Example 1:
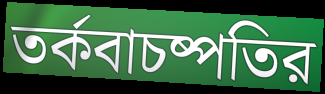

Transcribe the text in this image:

তর্কবাচষ্পতির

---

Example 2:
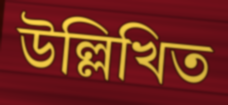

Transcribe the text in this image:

উল্লিখিত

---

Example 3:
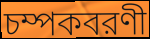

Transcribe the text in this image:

চম্পকবরণী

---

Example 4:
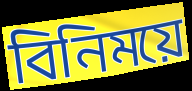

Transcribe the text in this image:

বিনিময়ে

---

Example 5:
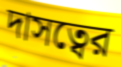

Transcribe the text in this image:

দাসত্বের